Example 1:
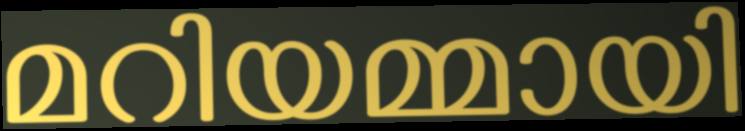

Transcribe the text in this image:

മറിയമ്മായി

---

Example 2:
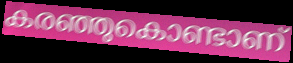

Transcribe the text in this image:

കരഞ്ഞുകൊണ്ടാണ്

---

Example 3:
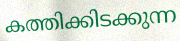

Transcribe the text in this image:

കത്തിക്കിടക്കുന്ന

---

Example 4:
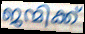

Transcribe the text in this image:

ജന്മിക്ക്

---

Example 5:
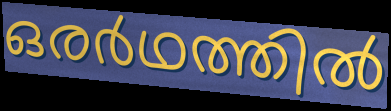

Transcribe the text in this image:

ഒരർഥത്തിൽ